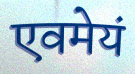
एवमेयं